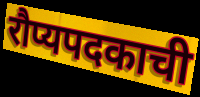
रौप्यपदकाची